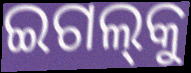
ଇଗଲ୍‌କୁ